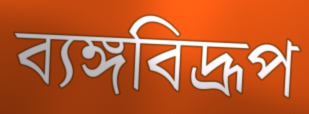
ব্যঙ্গবিদ্রূপ